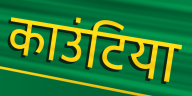
काउंटिया